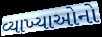
વ્યાખ્યાઓનો